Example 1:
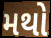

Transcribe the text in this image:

મથો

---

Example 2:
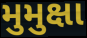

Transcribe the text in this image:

મુમુક્ષા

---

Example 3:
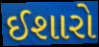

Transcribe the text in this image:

ઈશારો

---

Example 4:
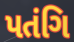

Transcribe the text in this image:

પતંગિ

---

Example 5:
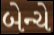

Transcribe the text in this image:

બેન્ચે